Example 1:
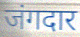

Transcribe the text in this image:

जंगदार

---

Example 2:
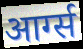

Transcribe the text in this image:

आर्ग्स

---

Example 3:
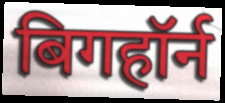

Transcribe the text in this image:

बिगहॉर्न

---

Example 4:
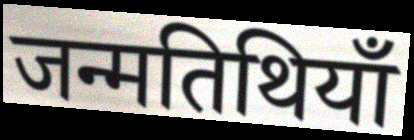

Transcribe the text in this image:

जन्मतिथियाँ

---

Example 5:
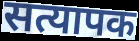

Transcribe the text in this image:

सत्यापक